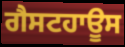
ਗੈਸਟਹਾਊਸ